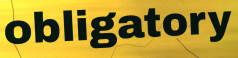
obligatory